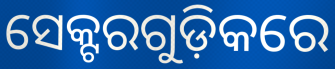
ସେକ୍ଟରଗୁଡ଼ିକରେ